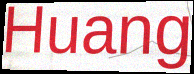
Huang